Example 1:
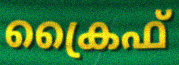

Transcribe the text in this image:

ക്രൈഫ്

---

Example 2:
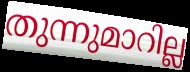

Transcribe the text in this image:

തുന്നുമാറില്ല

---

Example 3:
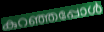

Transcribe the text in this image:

കുറഞ്ഞപ്പോൾ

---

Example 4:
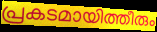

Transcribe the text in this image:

പ്രകടമായിത്തീരും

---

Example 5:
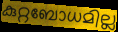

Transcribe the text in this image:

കുറ്റബോധമില്ല